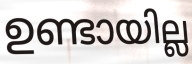
ഉണ്ടായില്ല